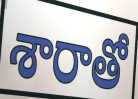
శారాతో